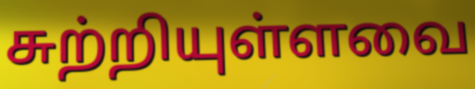
சுற்றியுள்ளவை